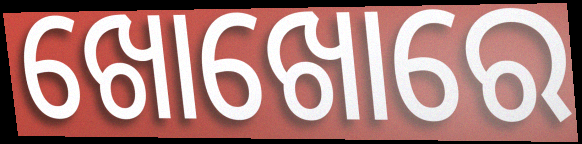
ଖୋଖୋରେ